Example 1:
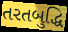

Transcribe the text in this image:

તરતબુદ્ધિ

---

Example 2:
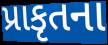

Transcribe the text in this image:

પ્રાકૃતના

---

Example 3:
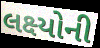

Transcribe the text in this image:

લક્ષ્યોની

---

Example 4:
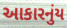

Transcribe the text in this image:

આકારનુંય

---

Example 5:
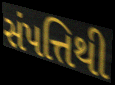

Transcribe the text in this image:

સંપત્તિથી